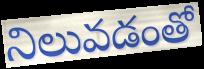
నిలువడంతో